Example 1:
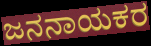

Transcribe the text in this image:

ಜನನಾಯಕರ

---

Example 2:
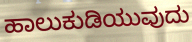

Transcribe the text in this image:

ಹಾಲುಕುಡಿಯುವುದು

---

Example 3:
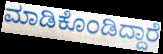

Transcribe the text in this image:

ಮಾಡಿಕೊಂಡಿದ್ದಾರೆ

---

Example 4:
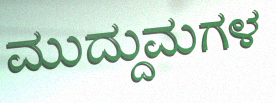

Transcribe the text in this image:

ಮುದ್ದುಮಗಳ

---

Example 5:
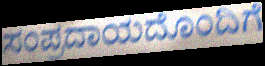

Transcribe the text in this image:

ಸಂಪ್ರದಾಯದೊಂದಿಗೆ